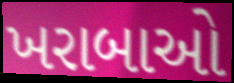
ખરાબાઓ